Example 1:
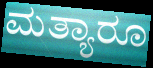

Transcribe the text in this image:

ಮತ್ಯಾರೂ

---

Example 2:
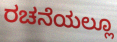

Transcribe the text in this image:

ರಚನೆಯಲ್ಲೂ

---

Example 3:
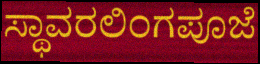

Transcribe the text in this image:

ಸ್ಥಾವರಲಿಂಗಪೂಜೆ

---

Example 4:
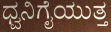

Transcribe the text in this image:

ಧ್ವನಿಗೈಯುತ್ತ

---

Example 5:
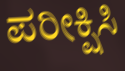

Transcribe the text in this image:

ಪರೀಕ್ಷಿಸಿ